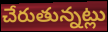
చేరుతున్నట్లు